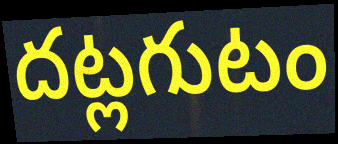
దట్లగుటం